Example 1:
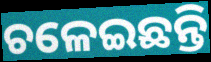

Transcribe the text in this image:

ଚଳେଇଛନ୍ତି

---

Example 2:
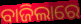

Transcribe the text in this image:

ବାଜିଲାରେ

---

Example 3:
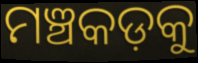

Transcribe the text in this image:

ମଞ୍ଚକଡ଼କୁ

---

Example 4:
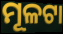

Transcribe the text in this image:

ମୂଳଟା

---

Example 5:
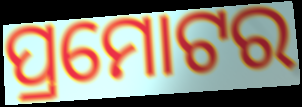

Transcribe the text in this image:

ପ୍ରମୋଟର